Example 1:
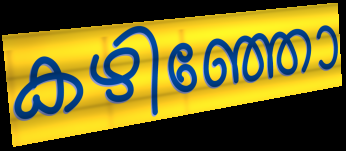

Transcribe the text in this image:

കഴിഞ്ഞോ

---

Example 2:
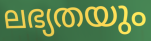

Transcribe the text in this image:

ലഭ്യതയും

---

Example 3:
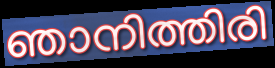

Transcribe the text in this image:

ഞാനിത്തിരി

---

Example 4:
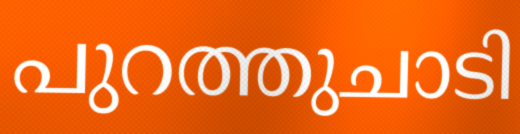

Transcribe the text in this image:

പുറത്തുചാടി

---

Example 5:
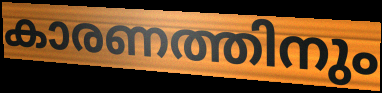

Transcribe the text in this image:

കാരണത്തിനും